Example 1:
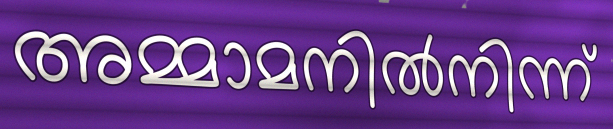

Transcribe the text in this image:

അമ്മാമനിൽനിന്ന്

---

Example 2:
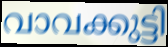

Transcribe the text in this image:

വാവക്കുട്ടി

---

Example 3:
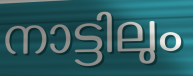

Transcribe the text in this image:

നാട്ടിലും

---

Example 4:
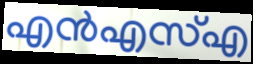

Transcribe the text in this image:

എൻഎസ്എ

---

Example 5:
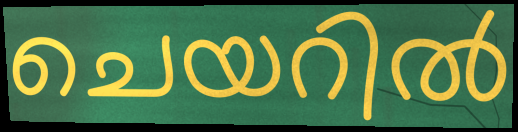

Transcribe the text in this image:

ചെയറിൽ